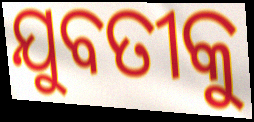
ଯୁବତୀକୁ